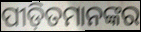
ପୀଡ଼ିତମାନଙ୍କର